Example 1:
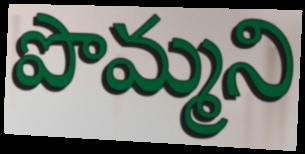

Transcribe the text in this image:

పొమ్మని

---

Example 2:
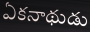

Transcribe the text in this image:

ఏకనాథుడు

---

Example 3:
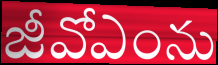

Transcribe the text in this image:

జీవోఎంను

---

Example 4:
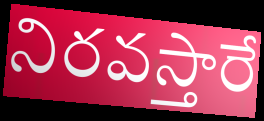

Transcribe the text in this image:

నిరవస్తారే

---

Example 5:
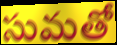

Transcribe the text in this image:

సుమతో